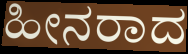
ಹೀನರಾದ